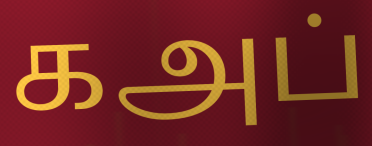
கஅப்